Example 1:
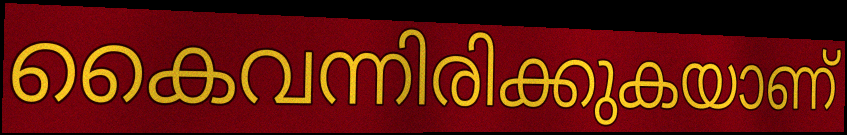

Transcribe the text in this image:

കൈവന്നിരിക്കുകയാണ്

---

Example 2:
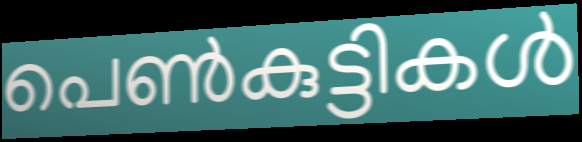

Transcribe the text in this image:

പെൺകുട്ടികൾ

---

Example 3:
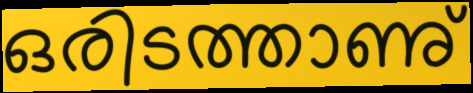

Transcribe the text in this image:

ഒരിടത്താണു്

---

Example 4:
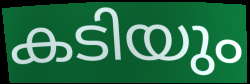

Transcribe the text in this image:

കടിയും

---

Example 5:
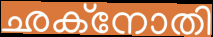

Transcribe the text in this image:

ഛക്നോതി